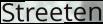
Streeten